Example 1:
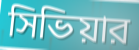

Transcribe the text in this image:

সিভিয়ার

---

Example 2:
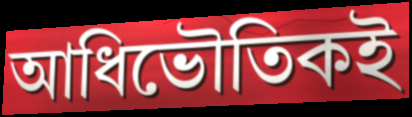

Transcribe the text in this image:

আধিভৌতিকই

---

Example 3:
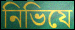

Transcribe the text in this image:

নিভিযে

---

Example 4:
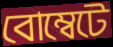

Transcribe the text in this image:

বোম্বেটে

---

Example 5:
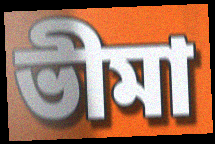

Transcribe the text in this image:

ভীমা